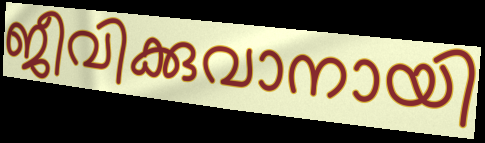
ജീവിക്കുവാനായി